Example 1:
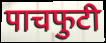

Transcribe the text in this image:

पाचफुटी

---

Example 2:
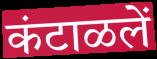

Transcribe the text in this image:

कंटाळलें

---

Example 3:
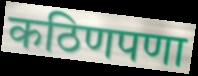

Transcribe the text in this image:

कठिणपणा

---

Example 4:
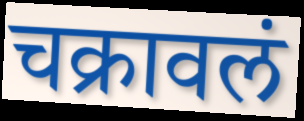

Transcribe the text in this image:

चक्रावलं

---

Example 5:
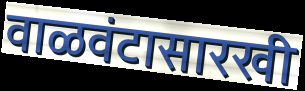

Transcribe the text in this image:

वाळवंटासारखी